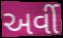
અર્વી